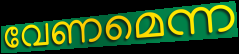
വേണമെന്ന